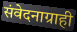
संवेदनाग्राही